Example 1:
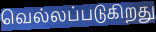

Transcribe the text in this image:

வெல்லப்படுகிறது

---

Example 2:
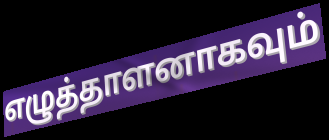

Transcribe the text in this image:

எழுத்தாளனாகவும்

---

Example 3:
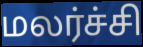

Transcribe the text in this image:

மலர்ச்சி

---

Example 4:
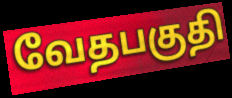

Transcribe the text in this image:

வேதபகுதி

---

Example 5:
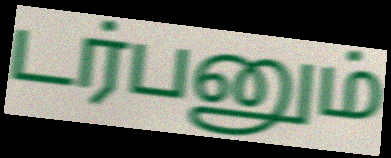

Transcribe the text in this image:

டர்பனும்